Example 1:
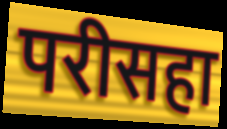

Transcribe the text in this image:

परीसहा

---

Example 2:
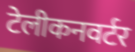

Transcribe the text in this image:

टेलीकनवर्टर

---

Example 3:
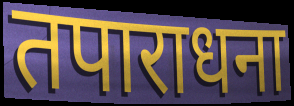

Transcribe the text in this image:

तपाराधना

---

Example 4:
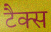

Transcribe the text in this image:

टैक्स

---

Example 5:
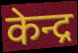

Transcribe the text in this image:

केन्‍द्र